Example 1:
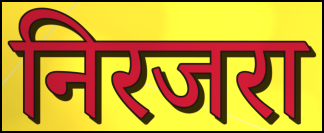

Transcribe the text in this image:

निरजरा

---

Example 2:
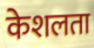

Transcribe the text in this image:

केशलता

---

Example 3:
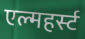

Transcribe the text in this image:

एल्महर्स्ट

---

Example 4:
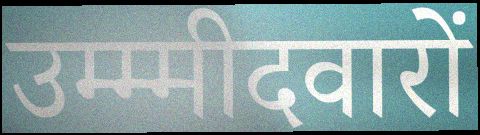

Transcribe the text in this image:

उम्म्मीदवारों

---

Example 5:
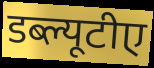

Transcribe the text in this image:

डब्ल्यूटीए